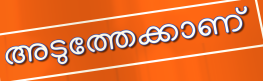
അടുത്തേക്കാണ്